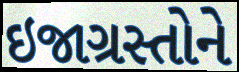
ઇજાગ્રસ્તોને